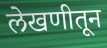
लेखणीतून